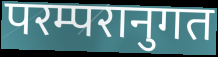
परम्परानुगत